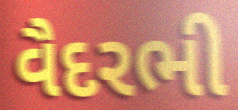
વૈદરભી